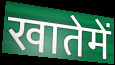
खातेमें